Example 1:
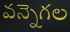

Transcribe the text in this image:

వన్నెగల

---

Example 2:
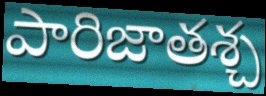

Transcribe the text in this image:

పారిజాతశ్చ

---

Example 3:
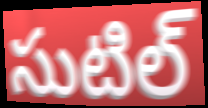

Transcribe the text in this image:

సుటిల్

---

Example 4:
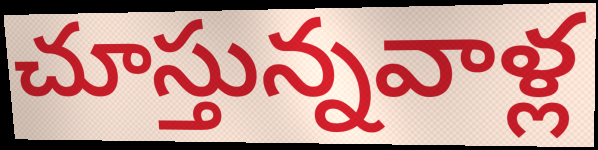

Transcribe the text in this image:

చూస్తున్నవాళ్ల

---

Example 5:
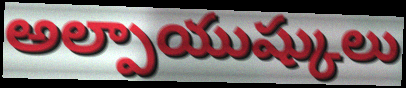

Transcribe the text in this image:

అల్పాయుష్కులు